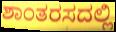
ಶಾಂತರಸದಲ್ಲಿ